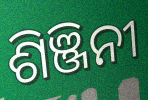
ଶିଞ୍ଜିନୀ